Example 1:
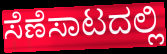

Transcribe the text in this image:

ಸೆಣೆಸಾಟದಲ್ಲಿ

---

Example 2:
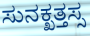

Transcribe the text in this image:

ಸುನಕ್ಖತ್ತಸ್ಸ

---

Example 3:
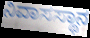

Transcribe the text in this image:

ನಿವಾಸಸ್ಥಾನ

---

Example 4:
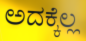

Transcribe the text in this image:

ಅದಕ್ಕೆಲ್ಲ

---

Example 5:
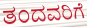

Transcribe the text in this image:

ತಂದವರಿಗೆ